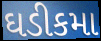
ઘડીકમા